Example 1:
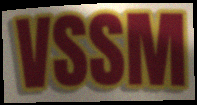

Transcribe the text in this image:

VSSM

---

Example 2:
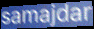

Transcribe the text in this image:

samajdar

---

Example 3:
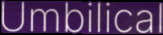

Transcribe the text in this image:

Umbilical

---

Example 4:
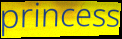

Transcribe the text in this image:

princess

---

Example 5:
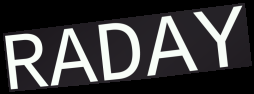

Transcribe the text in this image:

RADAY